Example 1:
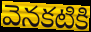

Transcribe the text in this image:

వెనకటికి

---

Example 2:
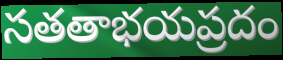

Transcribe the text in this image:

సతతాభయప్రదం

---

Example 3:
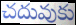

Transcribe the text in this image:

చదువుకు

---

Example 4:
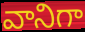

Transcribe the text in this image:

వానిగా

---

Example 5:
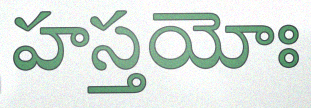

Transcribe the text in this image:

హస్తయోః